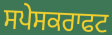
ਸਪੇਸਕਰਾਫਟ